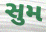
સુમ